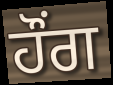
ਹੌਂਗ